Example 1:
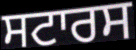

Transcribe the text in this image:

ਸਟਾਰਸ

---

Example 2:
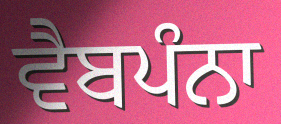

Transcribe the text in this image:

ਵੈਬਪੰਨਾ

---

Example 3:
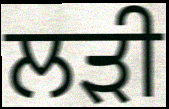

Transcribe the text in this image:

ਲਡ਼ੀ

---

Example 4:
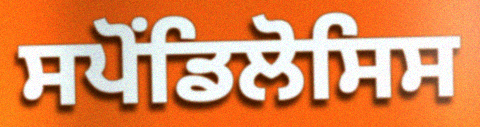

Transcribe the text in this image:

ਸਪੋਂਡਿਲੋਸਿਸ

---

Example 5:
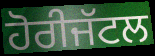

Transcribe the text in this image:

ਹੋਰੀਜੱਟਲ